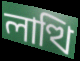
লাত্থি